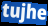
tujhe